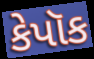
કેપૉક